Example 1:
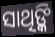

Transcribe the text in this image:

ସାଥିଙ୍କି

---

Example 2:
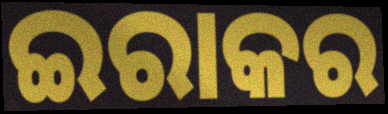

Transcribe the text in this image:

ଇରାକର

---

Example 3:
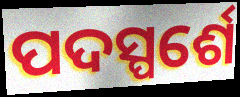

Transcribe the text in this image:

ପଦସ୍ପର୍ଶେ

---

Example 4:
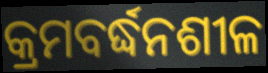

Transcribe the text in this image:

କ୍ରମବର୍ଦ୍ଧନଶୀଳ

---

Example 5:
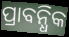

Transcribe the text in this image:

ପ୍ରାବନ୍ଧିକ